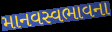
માનવસ્વભાવના